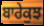
ਬਾਰੇਕੁਝ